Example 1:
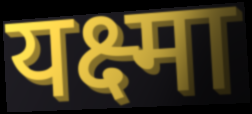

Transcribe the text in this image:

यक्ष्मा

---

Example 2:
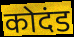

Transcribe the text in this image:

कोदंड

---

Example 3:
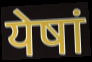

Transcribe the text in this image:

येषां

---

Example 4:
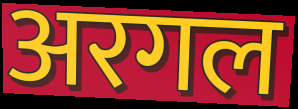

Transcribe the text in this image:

अरगल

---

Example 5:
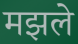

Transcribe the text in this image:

मझले